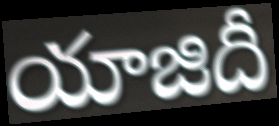
యాజిదీ